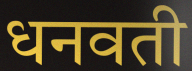
धनवती